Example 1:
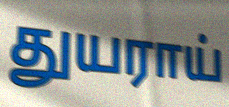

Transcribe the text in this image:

துயராய்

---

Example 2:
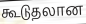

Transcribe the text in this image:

கூடுதலான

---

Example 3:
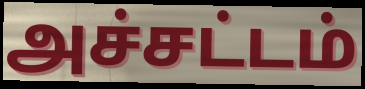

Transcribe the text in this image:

அச்சட்டம்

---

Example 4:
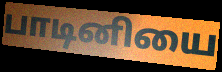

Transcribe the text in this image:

பாடினியை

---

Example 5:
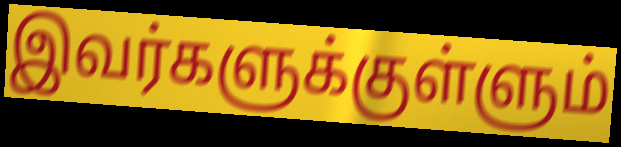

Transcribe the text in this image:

இவர்களுக்குள்ளும்